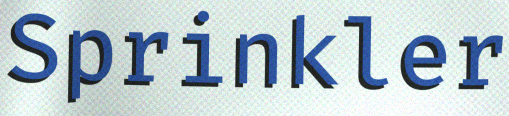
Sprinkler